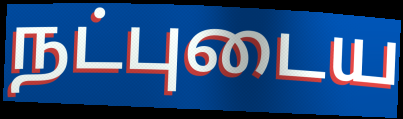
நட்புடைய